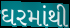
ઘરમાંથી